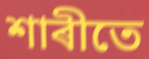
শাৰীতে